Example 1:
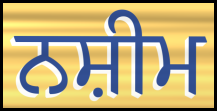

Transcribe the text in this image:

ਨਸ਼ੀਮ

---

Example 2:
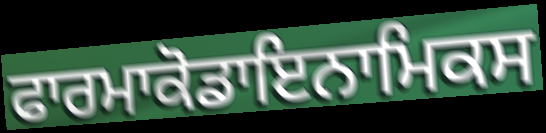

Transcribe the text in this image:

ਫਾਰਮਾਕੋਡਾਇਨਾਮਿਕਸ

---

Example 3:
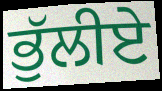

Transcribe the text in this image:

ਭੁੱਲੀਏ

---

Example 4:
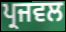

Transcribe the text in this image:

ਪ੍ਰਜਵਲ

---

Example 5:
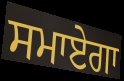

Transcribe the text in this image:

ਸਮਾਏਗਾ